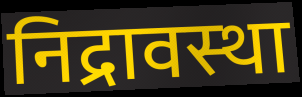
निद्रावस्था